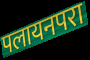
पलायनपरा